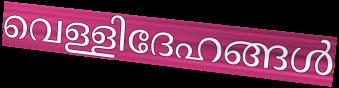
വെള്ളിദേഹങ്ങൾ